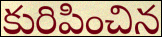
కురిపించిన